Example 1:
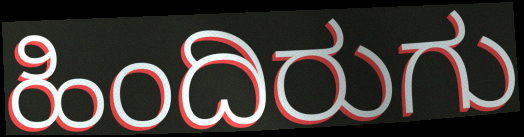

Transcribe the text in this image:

ಹಿಂದಿರುಗು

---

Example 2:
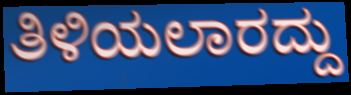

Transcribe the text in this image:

ತಿಳಿಯಲಾರದ್ದು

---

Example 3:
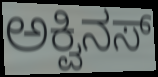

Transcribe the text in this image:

ಅಕ್ವಿನಸ್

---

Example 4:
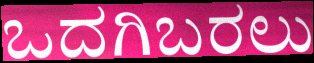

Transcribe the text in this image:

ಒದಗಿಬರಲು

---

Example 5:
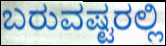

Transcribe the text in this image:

ಬರುವಷ್ಟರಲ್ಲಿ